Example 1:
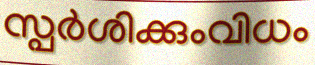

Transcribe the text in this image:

സ്പർശിക്കുംവിധം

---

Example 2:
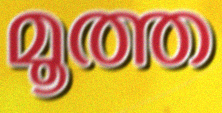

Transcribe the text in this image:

മൂത്ത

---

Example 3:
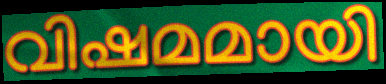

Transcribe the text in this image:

വിഷമമായി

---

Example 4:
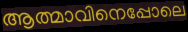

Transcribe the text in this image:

ആത്മാവിനെപ്പോലെ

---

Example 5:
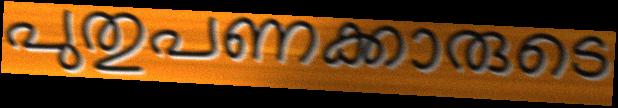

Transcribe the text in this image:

പുതുപണക്കാരുടെ